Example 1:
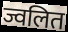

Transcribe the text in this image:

ज्वलित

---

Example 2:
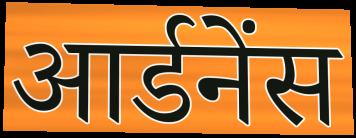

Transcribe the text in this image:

आर्डनेंस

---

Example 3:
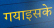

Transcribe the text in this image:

गयाइसके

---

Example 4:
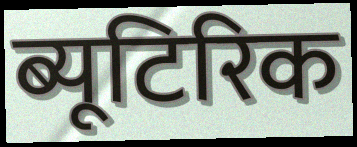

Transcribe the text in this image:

ब्यूटिरिक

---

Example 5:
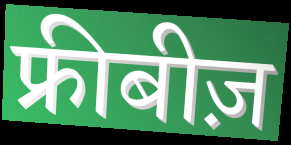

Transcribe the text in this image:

फ्रीबीज़